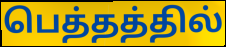
பெத்தத்தில்